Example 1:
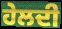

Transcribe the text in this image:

ਹੇਲਦੀ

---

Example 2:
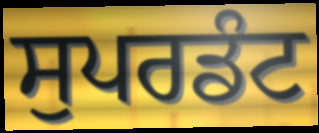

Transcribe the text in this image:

ਸੁਪਰਡੰਟ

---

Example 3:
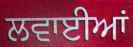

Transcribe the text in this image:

ਲਵਾਈਆਂ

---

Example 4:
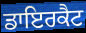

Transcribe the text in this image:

ਡਾਇਰਕੈਟ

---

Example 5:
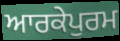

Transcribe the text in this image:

ਆਰਕੇਪੁਰਮ